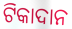
ଟିକାଦାନ